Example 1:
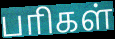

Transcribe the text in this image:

பரிகள்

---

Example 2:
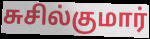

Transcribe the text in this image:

சுசில்குமார்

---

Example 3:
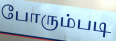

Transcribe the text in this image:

போரும்படி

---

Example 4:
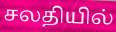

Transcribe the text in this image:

சலதியில்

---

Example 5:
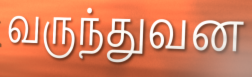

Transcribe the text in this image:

வருந்துவன